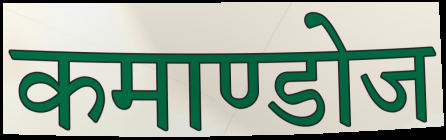
कमाण्डोज